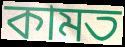
কামত